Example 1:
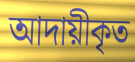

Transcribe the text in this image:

আদায়ীকৃত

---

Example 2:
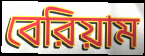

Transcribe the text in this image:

বেরিয়াম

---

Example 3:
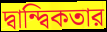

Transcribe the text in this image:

দ্বান্দ্বিকতার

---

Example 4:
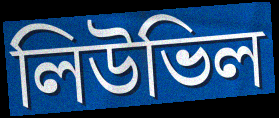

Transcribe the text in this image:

লিউভিল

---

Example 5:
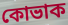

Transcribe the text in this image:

কোভাক